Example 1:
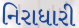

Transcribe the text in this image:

નિરાધારી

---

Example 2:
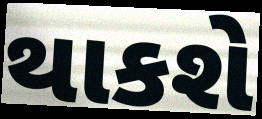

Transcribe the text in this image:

થાકશે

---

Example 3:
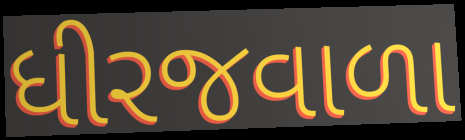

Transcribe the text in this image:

ધીરજવાળા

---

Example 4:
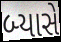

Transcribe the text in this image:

બ્યાસે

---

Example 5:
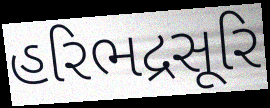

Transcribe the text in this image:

હરિભદ્રસૂરિ